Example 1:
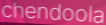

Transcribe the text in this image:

chendoola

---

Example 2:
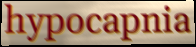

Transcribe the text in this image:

hypocapnia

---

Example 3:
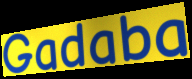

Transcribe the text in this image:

Gadaba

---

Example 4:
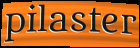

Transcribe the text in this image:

pilaster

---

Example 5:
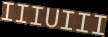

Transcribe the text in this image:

IIIUIII